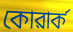
কোৱাৰ্ক